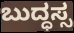
ಬುದ್ಧಸ್ಸ